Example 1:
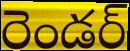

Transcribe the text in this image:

రెండర్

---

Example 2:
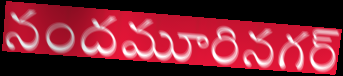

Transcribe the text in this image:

నందమూరినగర్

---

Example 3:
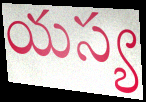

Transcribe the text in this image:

యస్య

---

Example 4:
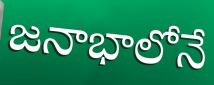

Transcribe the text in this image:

జనాభాలోనే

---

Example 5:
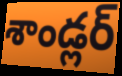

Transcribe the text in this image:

శాండ్లర్